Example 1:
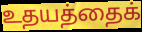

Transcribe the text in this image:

உதயத்தைக்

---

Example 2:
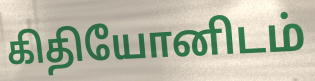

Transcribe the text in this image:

கிதியோனிடம்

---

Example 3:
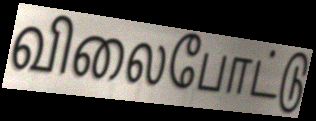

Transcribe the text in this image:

விலைபோட்டு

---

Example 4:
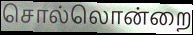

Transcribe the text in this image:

சொல்லொன்றை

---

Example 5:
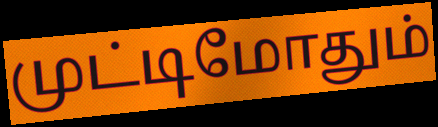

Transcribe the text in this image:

முட்டிமோதும்